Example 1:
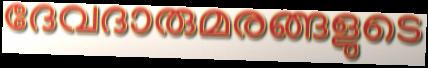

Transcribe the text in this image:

ദേവദാരുമരങ്ങളുടെ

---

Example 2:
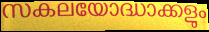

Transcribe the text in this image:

സകലയോദ്ധാക്കളും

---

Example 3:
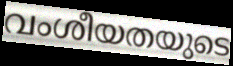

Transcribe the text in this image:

വംശീയതയുടെ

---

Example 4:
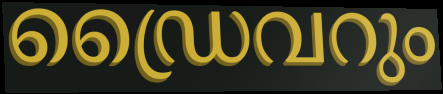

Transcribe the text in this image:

ഡ്രൈവറും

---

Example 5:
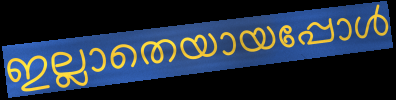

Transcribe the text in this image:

ഇല്ലാതെയായപ്പോൾ